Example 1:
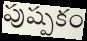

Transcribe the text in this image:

పుష్పకం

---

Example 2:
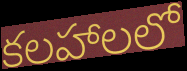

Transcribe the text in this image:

కలహాలలో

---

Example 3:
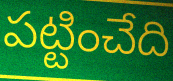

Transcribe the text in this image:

పట్టించేది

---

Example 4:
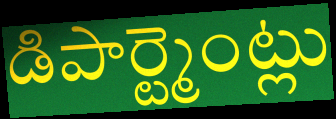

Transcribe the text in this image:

డిపార్ట్మెంట్లు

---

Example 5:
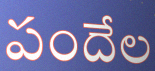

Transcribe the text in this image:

పందేల